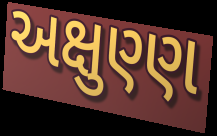
અક્ષુણ્ણ